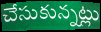
చేసుకున్నట్లు